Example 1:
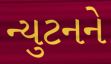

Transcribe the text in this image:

ન્યુટનને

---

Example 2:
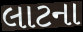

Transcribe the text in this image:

લાટના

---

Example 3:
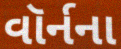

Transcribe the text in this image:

વૉર્નના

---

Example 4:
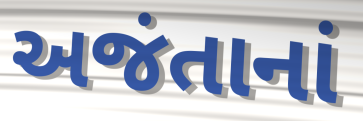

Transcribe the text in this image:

અજંતાનાં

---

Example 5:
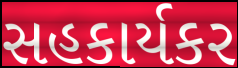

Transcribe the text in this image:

સહકાર્યકર